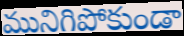
మునిగిపోకుండా